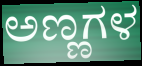
ಅಣ್ಣಗಳ